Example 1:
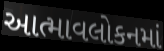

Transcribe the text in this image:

આત્માવલોકનમાં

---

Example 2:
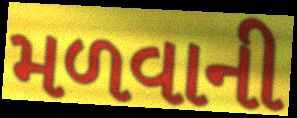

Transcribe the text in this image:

મળવાની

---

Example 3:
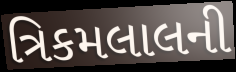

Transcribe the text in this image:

ત્રિકમલાલની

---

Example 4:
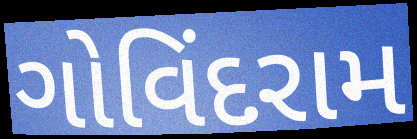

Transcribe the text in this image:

ગોવિંદરામ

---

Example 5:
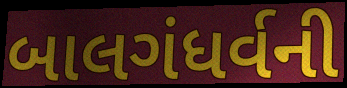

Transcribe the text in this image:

બાલગંધર્વની